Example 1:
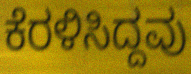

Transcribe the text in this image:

ಕೆರಳಿಸಿದ್ದವು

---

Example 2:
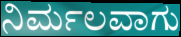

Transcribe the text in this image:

ನಿರ್ಮಲವಾಗು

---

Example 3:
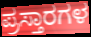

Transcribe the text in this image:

ಪ್ರಸ್ತಾರಗಳ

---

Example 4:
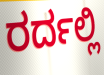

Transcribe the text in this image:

ರರ್ದಲ್ಲಿ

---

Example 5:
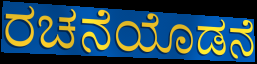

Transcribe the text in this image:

ರಚನೆಯೊಡನೆ